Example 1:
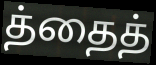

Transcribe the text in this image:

த்தைத்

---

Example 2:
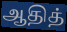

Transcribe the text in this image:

ஆதித்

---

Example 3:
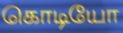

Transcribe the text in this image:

கொடியோ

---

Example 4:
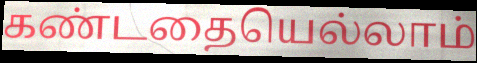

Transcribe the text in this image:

கண்டதையெல்லாம்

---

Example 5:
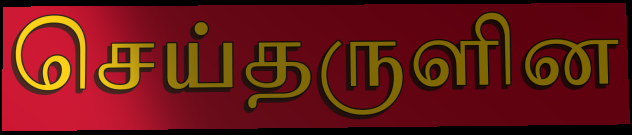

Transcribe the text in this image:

செய்தருளின